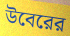
উবেরের